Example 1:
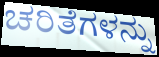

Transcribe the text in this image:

ಚರಿತೆಗಳನ್ನು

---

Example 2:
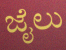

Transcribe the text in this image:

ಜೈಲು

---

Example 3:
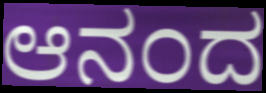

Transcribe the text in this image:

ಆನಂದ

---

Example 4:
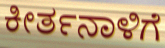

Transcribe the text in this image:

ಕೀರ್ತನಾಳಿಗೆ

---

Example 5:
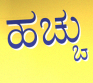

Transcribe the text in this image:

ಹಚ್ಚು